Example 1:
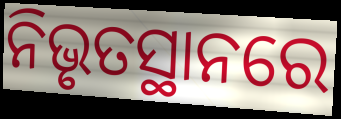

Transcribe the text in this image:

ନିଭୃତସ୍ଥାନରେ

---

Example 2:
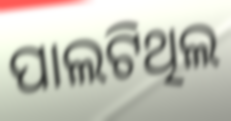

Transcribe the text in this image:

ପାଲଟିଥିଲ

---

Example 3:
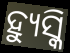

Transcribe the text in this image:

ହ୍ୟୁସ୍କି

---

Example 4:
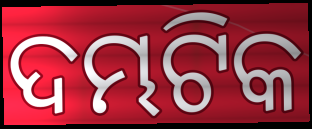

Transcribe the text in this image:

ଦମ୍ଭଟିକ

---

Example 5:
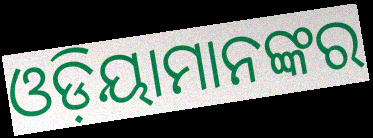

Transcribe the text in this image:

ଓଡ଼ିୟାମାନଙ୍କର